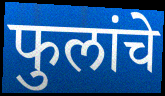
फुलांचे